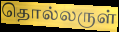
தொல்லருள்